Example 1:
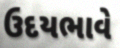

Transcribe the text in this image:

ઉદયભાવે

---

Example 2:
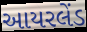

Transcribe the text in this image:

આયરલેંડ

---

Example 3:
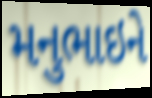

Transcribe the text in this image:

મનુભાઇને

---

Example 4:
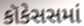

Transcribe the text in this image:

કૉકેસસમાં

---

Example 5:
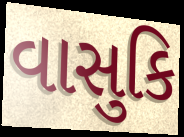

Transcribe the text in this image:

વાસુકિ